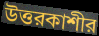
উত্তরকাশীর